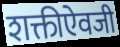
शक्तीऐवजी